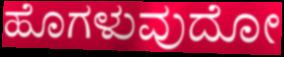
ಹೊಗಳುವುದೋ